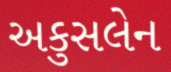
અકુસલેન